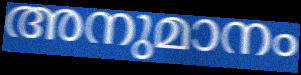
അനുമാനം